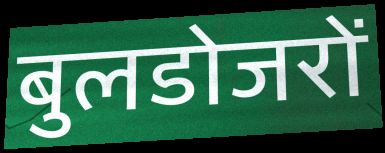
बुलडोजरों